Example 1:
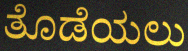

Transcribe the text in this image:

ತೊಡೆಯಲು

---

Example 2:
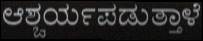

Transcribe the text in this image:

ಆಶ್ಚರ್ಯಪಡುತ್ತಾಳೆ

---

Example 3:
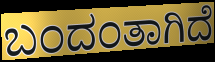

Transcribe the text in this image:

ಬಂದಂತಾಗಿದೆ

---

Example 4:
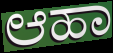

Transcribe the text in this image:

ಆಹಾ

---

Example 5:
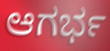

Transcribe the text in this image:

ಆಗರ್ಭ